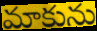
మాకును